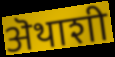
ऄथाशी